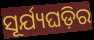
ସୂର୍ଯ୍ୟଘଡ଼ିର